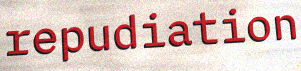
repudiation